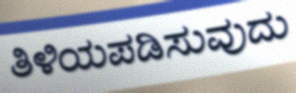
ತಿಳಿಯಪಡಿಸುವುದು